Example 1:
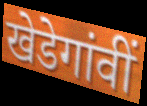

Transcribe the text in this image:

खेडेगांवीं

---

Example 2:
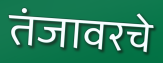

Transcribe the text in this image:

तंजावरचे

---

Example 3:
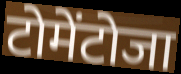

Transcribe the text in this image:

टोमेंटोजा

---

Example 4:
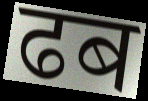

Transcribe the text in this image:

ढब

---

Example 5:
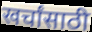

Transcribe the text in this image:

खर्चांसाठी